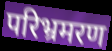
परिभ्रमरण